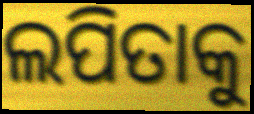
ଲପିତାକୁ